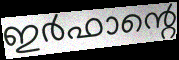
ഇർഫാന്റെ